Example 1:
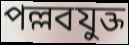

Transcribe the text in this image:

পল্লবযুক্ত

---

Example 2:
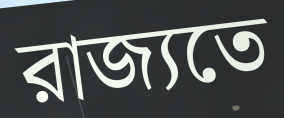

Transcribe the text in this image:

রাজ্যতে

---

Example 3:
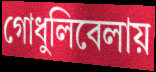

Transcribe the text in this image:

গোধুলিবেলায়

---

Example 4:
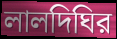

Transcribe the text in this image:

লালদিঘির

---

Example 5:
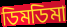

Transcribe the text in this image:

ডিমডিমা